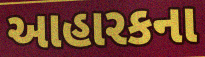
આહારકના